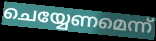
ചെയ്യേണമെന്ന്